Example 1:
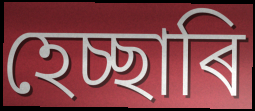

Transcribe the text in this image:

হেচ্ছাৰি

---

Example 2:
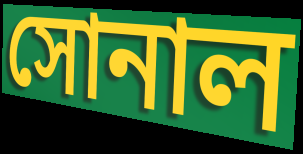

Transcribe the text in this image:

সোনাল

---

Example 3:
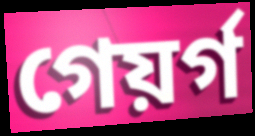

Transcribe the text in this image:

গেয়ৰ্গ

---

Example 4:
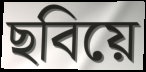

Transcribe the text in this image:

ছবিয়ে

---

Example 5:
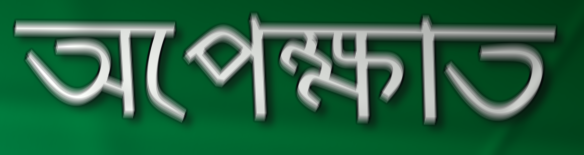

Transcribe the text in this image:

অপেক্ষাত